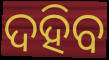
ଦହିବ